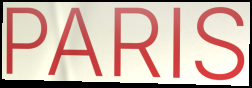
PARIS